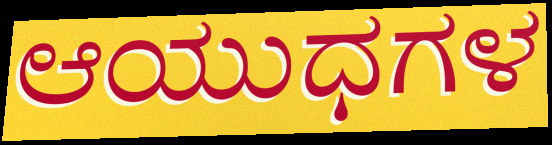
ಆಯುಧಗಳ